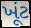
ખૂંટ